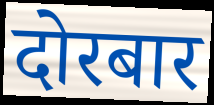
दोरबार